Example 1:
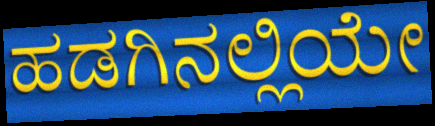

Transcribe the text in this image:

ಹಡಗಿನಲ್ಲಿಯೇ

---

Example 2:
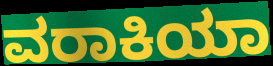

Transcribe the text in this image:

ವರಾಕಿಯಾ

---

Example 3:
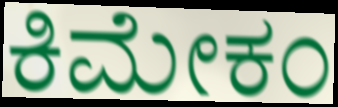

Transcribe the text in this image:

ಕಿಮೇಕಂ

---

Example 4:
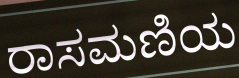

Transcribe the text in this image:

ರಾಸಮಣಿಯ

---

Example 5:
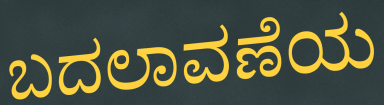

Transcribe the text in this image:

ಬದಲಾವಣೆಯ